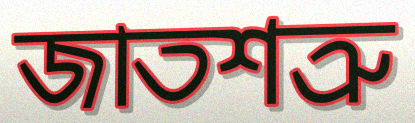
জাতশত্রু